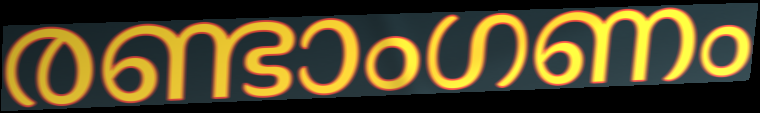
രണ്ടാംഗണം